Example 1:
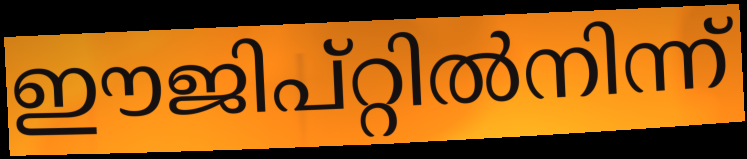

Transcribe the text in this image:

ഈജിപ്റ്റിൽനിന്ന്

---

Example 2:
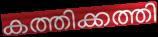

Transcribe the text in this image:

കത്തിക്കത്തി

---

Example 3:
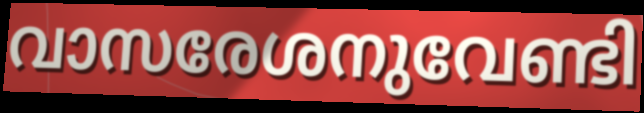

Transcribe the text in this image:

വാസരേശനുവേണ്ടി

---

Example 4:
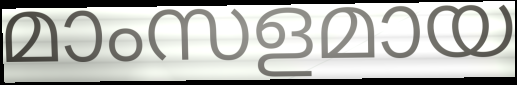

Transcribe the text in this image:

മാംസളമായ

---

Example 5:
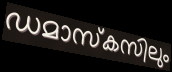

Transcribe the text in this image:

ഡമാസ്കസിലും